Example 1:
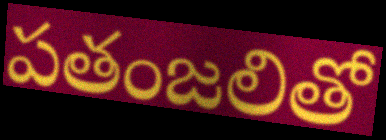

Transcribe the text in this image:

పతంజలితో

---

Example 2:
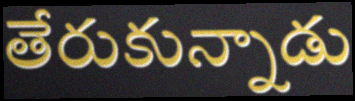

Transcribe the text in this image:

తేరుకున్నాడు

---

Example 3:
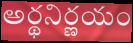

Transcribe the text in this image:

అర్థనిర్ణయం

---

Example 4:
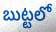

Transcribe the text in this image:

బుట్టలో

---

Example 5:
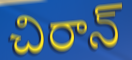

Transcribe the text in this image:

చిరాన్